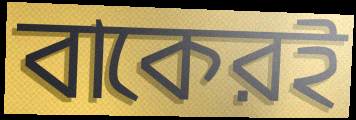
বাকেরই